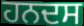
ਹਨਦਸ